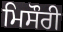
ਮਿਸੌਰੀ